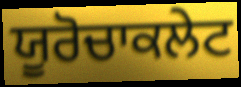
ਯੂਰੋਚਾਕਲੇਟ